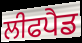
ਲੀਫਪੈਡ